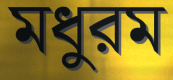
মধুরম